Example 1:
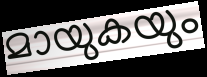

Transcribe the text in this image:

മായുകയും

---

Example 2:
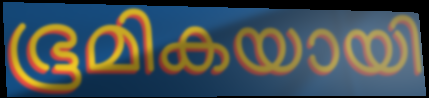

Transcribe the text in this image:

ഭൂമികയായി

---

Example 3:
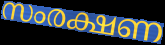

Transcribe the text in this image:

സംരക്ഷണ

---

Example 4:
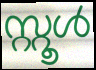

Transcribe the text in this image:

സ്റ്റൂൾ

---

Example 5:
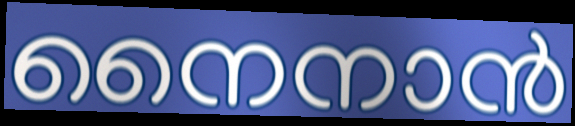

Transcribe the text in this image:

നൈനാൻ